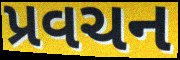
પ્રવચન